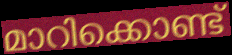
മാറിക്കൊണ്ട്